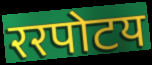
ररपोटय